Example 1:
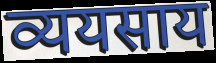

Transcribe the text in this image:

व्ययसाय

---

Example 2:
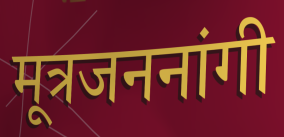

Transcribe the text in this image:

मूत्रजननांगी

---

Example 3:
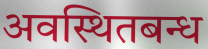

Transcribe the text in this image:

अवस्थितबन्ध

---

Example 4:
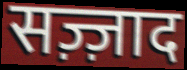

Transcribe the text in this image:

सज़्ज़ाद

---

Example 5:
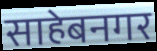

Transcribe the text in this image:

साहेबनगर